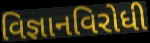
વિજ્ઞાનવિરોધી